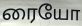
ரையோ